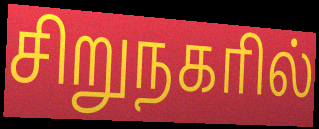
சிறுநகரில்